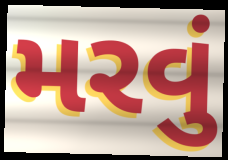
મરવું